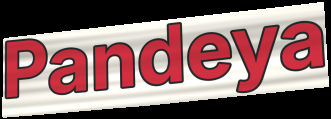
Pandeya